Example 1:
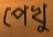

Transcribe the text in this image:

পেখু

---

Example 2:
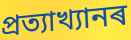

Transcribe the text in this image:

প্ৰত্যাখ্যানৰ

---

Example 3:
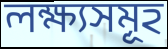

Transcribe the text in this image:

লক্ষ্যসমূহ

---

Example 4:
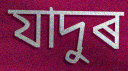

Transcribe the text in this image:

যাদুৰ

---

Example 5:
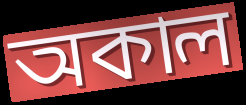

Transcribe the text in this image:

অকাল